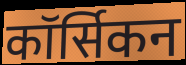
कॉर्सिकन